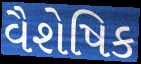
વૈશેષિક